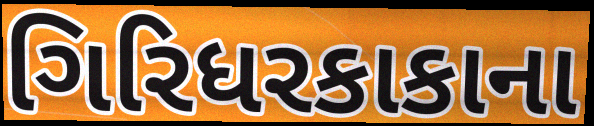
ગિરિધરકાકાના